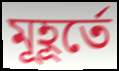
মূহূর্তে